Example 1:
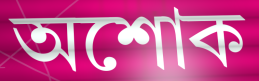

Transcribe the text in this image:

অশোক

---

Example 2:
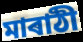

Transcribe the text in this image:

মাৰাঠী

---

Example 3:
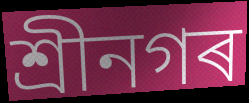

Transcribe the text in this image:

শ্ৰীনগৰ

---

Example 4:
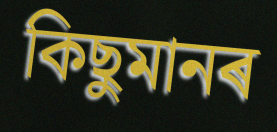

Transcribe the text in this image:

কিছুমানৰ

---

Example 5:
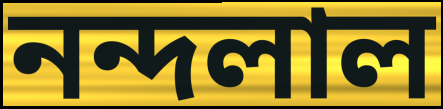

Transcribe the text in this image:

নন্দলাল